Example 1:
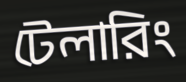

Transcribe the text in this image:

টেলারিং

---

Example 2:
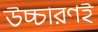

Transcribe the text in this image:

উচ্চারণই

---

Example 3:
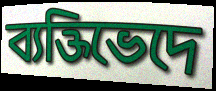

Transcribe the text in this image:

ব্যক্তিভেদে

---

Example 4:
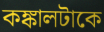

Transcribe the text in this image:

কঙ্কালটাকে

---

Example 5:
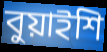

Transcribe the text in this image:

বুয়াইশি